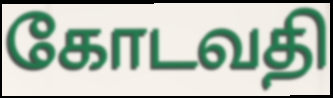
கோடவதி